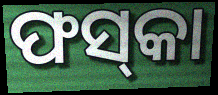
ଫସ୍‌କା